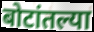
बोटांतल्या